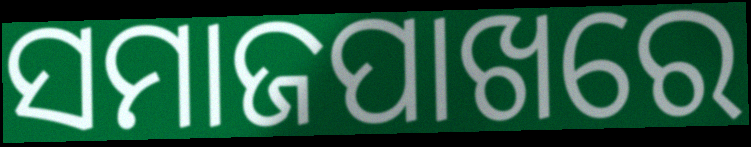
ସମାଜପାଖରେ